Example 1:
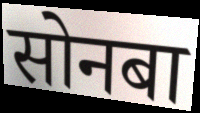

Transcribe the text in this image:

सोनबा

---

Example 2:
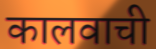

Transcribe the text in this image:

कालवाची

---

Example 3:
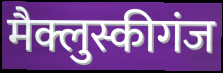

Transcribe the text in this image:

मैक्लुस्कीगंज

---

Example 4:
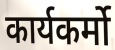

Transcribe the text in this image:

कार्यकर्मो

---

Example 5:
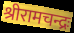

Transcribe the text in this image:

श्रीरामचन्द्रः